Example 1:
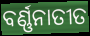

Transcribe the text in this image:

ବର୍ଣ୍ଣନାତୀତ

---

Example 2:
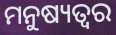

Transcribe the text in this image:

ମନୁଷ୍ୟତ୍ବର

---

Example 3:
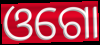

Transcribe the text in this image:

ଓଗୋ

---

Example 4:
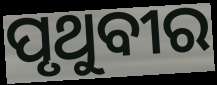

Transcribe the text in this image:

ପୃଥୁବୀର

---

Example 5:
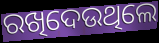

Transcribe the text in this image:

ରଖିଦେଉଥିଲେ